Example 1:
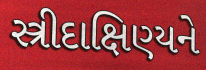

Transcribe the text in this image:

સ્ત્રીદાક્ષિણ્યને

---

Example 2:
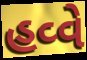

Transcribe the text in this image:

હવ્વે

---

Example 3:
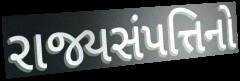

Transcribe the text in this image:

રાજ્યસંપત્તિનો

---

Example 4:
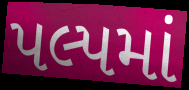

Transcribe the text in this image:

પલ્પમાં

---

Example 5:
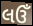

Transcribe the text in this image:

લઉઁ